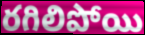
రగిలిపోయి